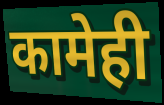
कामेही